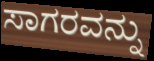
ಸಾಗರವನ್ನು